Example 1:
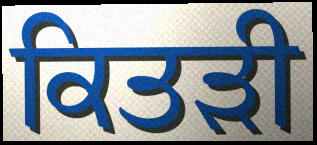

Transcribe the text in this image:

ਕਿਤੜੀ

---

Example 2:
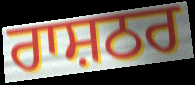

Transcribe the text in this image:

ਰਾਸ਼ਠਰ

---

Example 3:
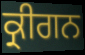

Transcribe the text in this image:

ਕ੍ਰੀਗਨ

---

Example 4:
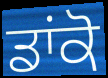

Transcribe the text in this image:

ਡਾਂਕੋ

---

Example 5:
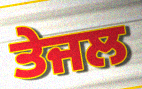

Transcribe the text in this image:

ਤੇਜਲ